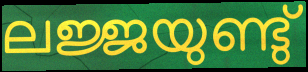
ലജ്ജയുണ്ടു്